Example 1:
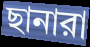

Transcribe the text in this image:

ছানারা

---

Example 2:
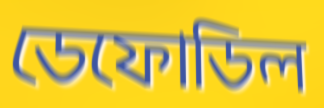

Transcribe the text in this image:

ডেফোডিল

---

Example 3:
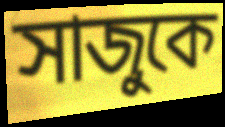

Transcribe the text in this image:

সাজুকে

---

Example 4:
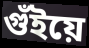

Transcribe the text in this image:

গুঁইয়ে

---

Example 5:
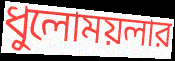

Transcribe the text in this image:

ধুলোময়লার